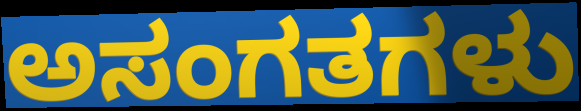
ಅಸಂಗತಗಳು